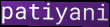
patiyani